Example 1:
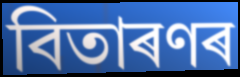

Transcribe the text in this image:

বিতাৰণৰ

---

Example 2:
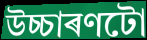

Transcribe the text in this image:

উচ্চাৰণটো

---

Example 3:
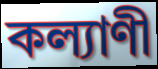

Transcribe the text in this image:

কল্যাণী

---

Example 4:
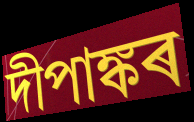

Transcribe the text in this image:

দীপাঙ্কৰ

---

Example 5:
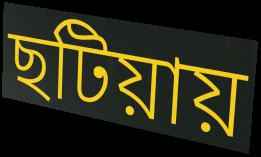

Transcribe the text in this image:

ছটিয়ায়